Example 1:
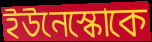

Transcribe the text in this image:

ইউনেস্কোকে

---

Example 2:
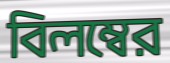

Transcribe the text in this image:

বিলম্বের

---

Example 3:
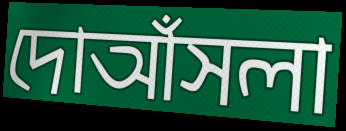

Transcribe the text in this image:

দোআঁসলা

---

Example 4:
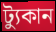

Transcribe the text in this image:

ট্যুকান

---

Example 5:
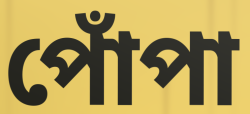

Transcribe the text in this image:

পোঁপা